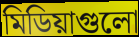
মিডিয়াগুলো